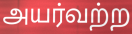
அயர்வற்ற